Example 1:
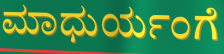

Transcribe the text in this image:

ಮಾಧುರ್ಯಂಗೆ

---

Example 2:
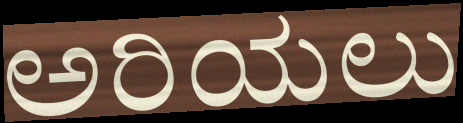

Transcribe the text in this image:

ಅರಿಯಲು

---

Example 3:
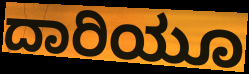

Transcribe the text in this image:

ದಾರಿಯೂ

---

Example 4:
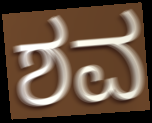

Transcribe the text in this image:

ಶವ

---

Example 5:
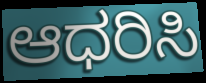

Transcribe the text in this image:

ಆಧರಿಸಿ